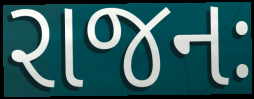
રાજનઃ